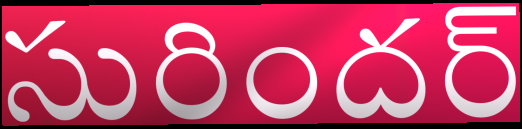
సురిందర్